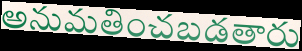
అనుమతించబడతారు